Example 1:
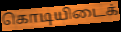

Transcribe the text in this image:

கொடியிடைக்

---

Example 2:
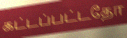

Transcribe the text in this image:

கட்டப்பட்டதோ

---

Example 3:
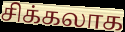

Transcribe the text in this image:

சிக்கலாக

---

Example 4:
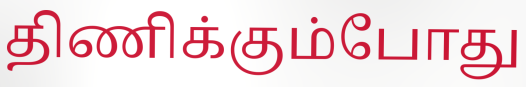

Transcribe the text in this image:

திணிக்கும்போது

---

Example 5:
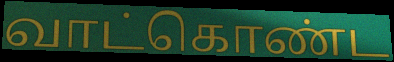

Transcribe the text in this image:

வாட்கொண்ட